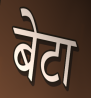
बेटा